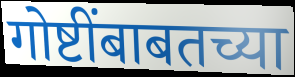
गोष्टींबाबतच्या